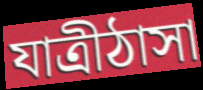
যাত্রীঠাসা